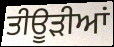
ਤੀਊੜੀਆਂ